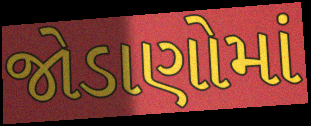
જોડાણોમાં